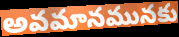
అవమానమునకు